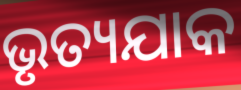
ଭୃତ୍ୟଯାକ